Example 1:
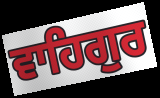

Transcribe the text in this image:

ਵਾਹਿਗੁਰ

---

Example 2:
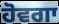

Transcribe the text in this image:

ਹੋਵਗਾ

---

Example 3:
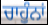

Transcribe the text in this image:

ਚਾਹੁੰਨਾਂ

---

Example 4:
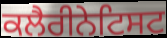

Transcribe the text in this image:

ਕਲੈਰੀਨੇਟਿਸਟ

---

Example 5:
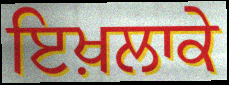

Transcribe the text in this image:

ਇਖ਼ਲਾਕੇ